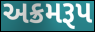
અક્રમરૂપ